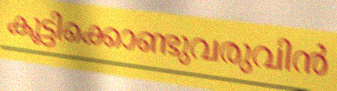
കൂട്ടിക്കൊണ്ടുവരുവിൻ